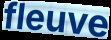
fleuve